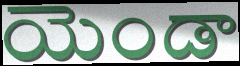
యెండా